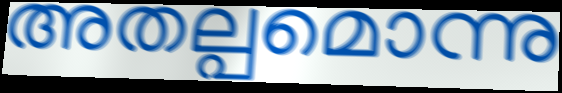
അതല്പമൊന്നു